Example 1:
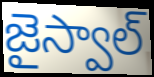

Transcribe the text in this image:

జైస్వాల్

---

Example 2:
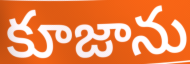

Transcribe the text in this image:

కూజాను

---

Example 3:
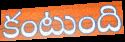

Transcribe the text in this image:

కంటుంది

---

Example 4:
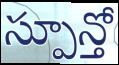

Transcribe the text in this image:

స్పూన్తో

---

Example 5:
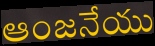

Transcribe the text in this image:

ఆంజనేయు